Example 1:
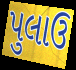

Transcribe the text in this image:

પુલાઉ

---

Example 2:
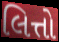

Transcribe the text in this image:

લિત્તો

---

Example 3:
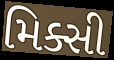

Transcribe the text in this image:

મિક્સી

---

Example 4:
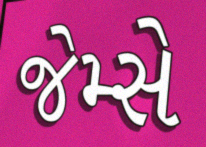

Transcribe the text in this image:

જેમ્સે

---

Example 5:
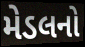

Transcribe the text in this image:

મેડલનો